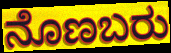
ನೊಣಬರು